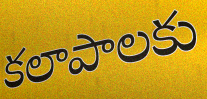
కలాపాలకు